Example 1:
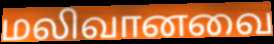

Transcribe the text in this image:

மலிவானவை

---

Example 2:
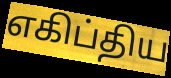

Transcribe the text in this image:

எகிப்திய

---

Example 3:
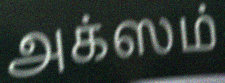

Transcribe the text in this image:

அக்ஸம்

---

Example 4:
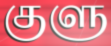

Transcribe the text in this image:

குளு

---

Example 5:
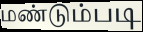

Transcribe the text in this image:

மண்டும்படி